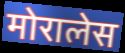
मोरालेस